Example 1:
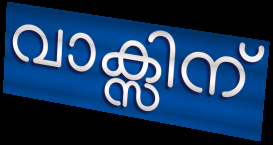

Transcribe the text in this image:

വാക്സിന്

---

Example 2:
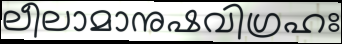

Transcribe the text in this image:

ലീലാമാനുഷവിഗ്രഹഃ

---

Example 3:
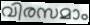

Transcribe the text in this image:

വിരസമാം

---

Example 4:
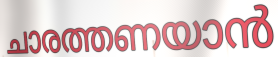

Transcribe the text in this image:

ചാരത്തണയാൻ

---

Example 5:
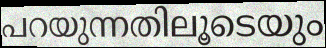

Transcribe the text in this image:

പറയുന്നതിലൂടെയും